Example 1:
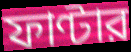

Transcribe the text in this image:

ফাণ্টার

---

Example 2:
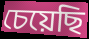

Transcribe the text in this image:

চেয়েছি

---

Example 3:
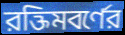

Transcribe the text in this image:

রক্তিমবর্ণের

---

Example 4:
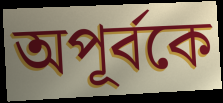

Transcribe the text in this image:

অপূর্বকে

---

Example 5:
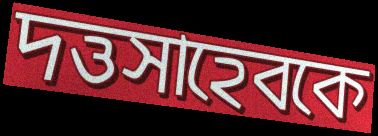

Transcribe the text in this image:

দত্তসাহেবকে